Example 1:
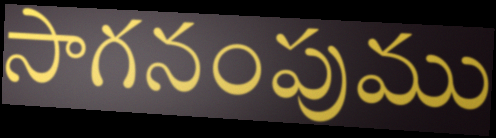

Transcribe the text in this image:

సాగనంపుము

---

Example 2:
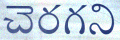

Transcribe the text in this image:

చెరగని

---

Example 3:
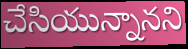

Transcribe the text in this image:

చేసియున్నానని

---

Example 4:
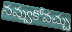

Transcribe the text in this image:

నవ్వుకోవచ్చు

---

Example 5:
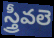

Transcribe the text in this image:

స్త్రీవలె